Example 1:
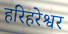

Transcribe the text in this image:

हरिहरेश्वर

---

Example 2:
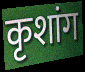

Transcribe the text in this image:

कृशांग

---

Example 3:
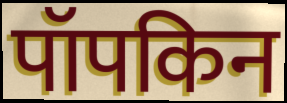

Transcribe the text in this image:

पॉपकिन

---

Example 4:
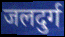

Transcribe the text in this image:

जलदुर्ग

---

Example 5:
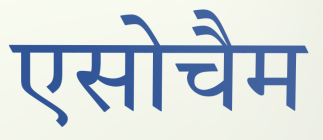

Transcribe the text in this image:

एसोचैम